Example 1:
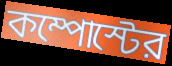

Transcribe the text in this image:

কম্পোস্টের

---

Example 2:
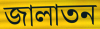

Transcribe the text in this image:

জালাতন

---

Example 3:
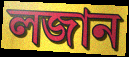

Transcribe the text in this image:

লজান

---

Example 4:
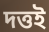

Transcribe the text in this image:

দত্তই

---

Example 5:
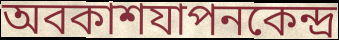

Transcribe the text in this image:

অবকাশযাপনকেন্দ্র